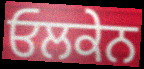
ਓਲਕੇਨ